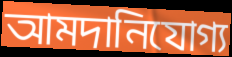
আমদানিযোগ্য